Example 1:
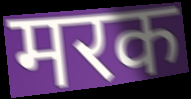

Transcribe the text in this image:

मरक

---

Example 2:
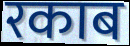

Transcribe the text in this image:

रकाब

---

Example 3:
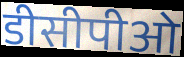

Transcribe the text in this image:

डीसीपीओ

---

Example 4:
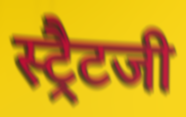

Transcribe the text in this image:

स्‍ट्रैटजी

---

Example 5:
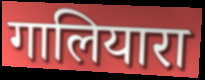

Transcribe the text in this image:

गालियारा